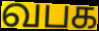
வபக